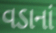
વડાનાં